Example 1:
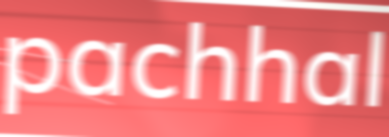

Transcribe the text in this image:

pachhal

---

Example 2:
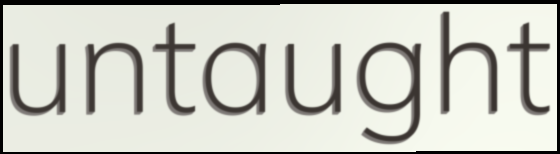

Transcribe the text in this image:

untaught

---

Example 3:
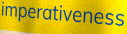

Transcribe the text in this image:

imperativeness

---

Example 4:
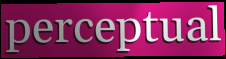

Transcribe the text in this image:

perceptual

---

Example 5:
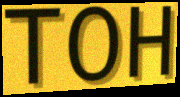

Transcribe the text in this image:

TOH